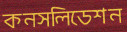
কনসলিডেশন